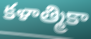
కళాత్మికా